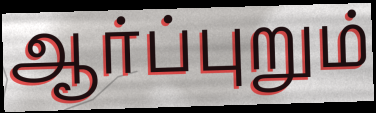
ஆர்ப்புறும்